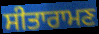
ਸੀਤਾਰਾਮਣ